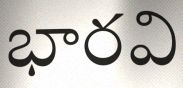
భారవి